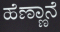
ಹೆಣ್ಣಾನೆ